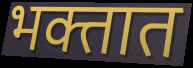
भक्तात